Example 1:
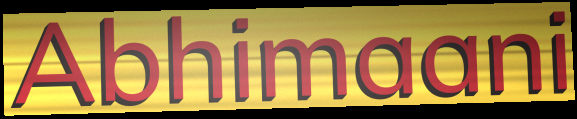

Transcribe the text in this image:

Abhimaani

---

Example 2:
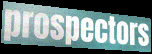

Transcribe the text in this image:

prospectors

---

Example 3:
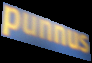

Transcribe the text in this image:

punnus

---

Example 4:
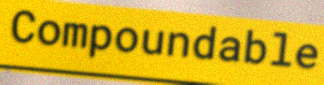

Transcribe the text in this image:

Compoundable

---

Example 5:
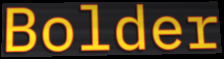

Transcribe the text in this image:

Bolder